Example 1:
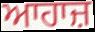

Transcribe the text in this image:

ਆਹਾਜ਼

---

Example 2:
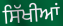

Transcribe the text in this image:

ਸਿੱਖੀਆਂ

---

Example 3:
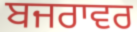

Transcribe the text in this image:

ਬਜਰਾਵਰ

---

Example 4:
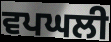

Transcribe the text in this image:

ਵਪਘਲੀ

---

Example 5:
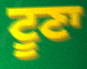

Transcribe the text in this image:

ਟੂਣਾ